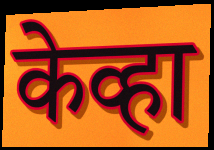
केव्हा